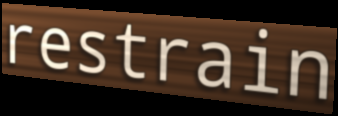
restrain